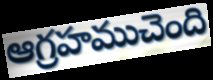
ఆగ్రహముచెంది